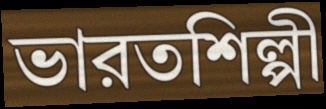
ভারতশিল্পী